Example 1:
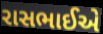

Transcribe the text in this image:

રાસભાઈએ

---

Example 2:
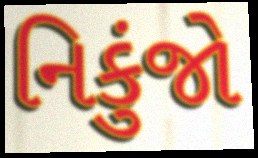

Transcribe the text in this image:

નિકુંજો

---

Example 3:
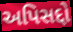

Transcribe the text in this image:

અપિસદ્દો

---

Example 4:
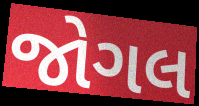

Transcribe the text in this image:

જોગલ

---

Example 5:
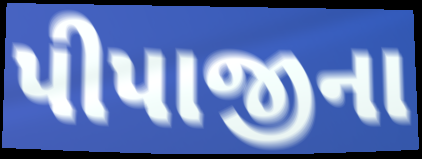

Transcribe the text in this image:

પીપાજીના